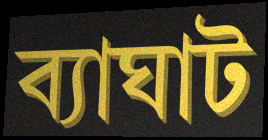
ব্যাঘাট